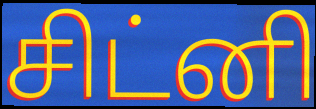
சிட்னி